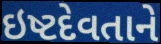
ઇષ્ટદેવતાને